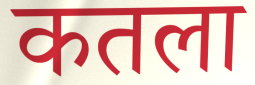
कतला